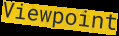
Viewpoint